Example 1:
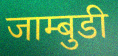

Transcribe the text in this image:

जाम्बुडी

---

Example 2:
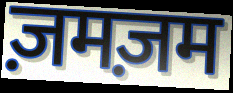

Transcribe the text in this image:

ज़मज़म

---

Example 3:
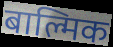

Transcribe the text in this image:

बाल्मिक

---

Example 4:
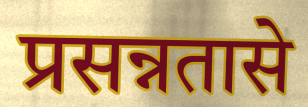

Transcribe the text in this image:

प्रसन्नतासे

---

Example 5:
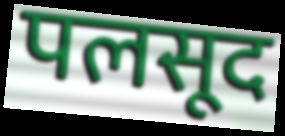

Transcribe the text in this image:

पलसूद